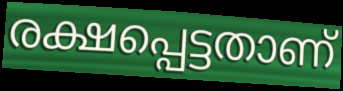
രക്ഷപ്പെട്ടതാണ്